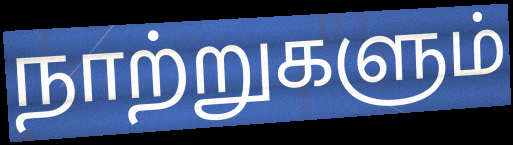
நாற்றுகளும்